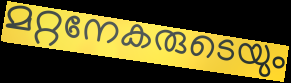
മറ്റനേകരുടെയും